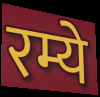
रम्ये